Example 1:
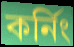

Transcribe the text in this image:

কর্নিং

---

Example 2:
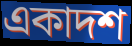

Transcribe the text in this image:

একাদশ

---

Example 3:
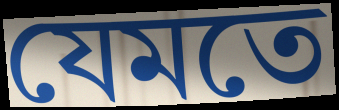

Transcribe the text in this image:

যেমতে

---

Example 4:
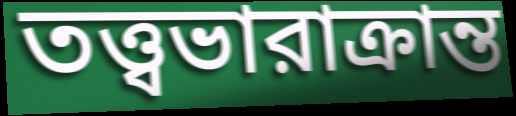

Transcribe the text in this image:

তত্ত্বভারাক্রান্ত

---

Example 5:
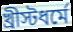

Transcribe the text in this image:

খ্রীস্টধর্মে